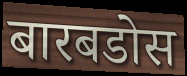
बारबडोस